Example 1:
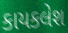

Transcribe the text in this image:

કાયકલેશ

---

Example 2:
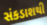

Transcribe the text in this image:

સંકડાશથી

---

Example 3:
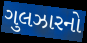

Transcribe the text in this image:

ગુલઝારનો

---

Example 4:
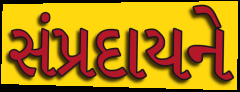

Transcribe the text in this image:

સંપ્રદાયને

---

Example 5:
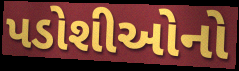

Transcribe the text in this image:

પડોશીઓનો